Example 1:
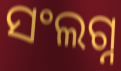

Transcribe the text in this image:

ସଂଲଗ୍ନ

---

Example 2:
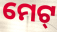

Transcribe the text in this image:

ମେଟ୍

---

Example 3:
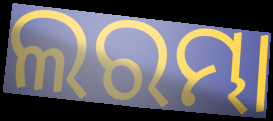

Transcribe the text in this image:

ଲରମ୍ଭା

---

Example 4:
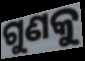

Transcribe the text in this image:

ଗୁଣକୁ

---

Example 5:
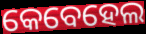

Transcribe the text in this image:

କେବେହେଲ